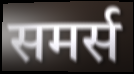
समर्स